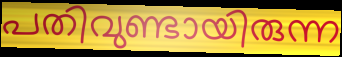
പതിവുണ്ടായിരുന്ന